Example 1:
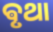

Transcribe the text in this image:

ଵୃଥା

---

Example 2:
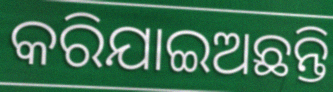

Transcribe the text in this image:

କରିଯାଇଅଛନ୍ତି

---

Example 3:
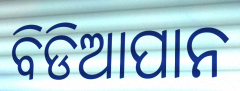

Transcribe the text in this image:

ବିଡିଆପାନ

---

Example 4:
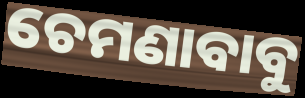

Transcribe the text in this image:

ଚେମଣାବାବୁ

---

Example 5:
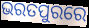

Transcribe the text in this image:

ଭରତପୁରରେ